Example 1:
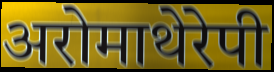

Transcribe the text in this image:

अरोमाथेरेपी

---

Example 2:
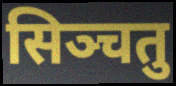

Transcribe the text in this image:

सिञ्चतु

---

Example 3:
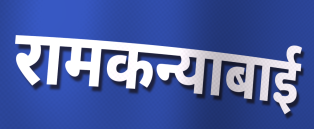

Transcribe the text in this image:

रामकन्याबाई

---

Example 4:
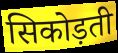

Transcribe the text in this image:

सिकोड़ती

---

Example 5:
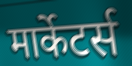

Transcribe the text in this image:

मार्केटर्स